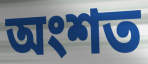
অংশত